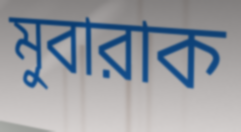
মুবারাক